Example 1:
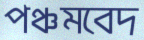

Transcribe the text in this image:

পঞ্চমবেদ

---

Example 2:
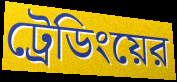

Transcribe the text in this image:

ট্রেডিংয়ের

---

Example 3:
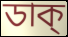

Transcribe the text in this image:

ডাক্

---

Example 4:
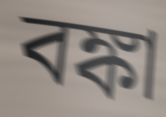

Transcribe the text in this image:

বঙ্কা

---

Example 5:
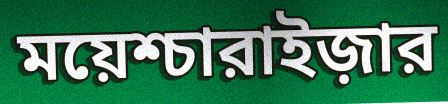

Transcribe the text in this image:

ময়েশ্চারাইজ়ার